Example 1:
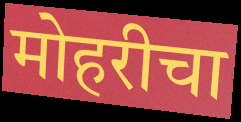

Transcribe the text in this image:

मोहरीचा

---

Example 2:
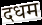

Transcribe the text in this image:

दधम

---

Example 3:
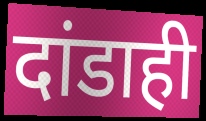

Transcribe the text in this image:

दांडाही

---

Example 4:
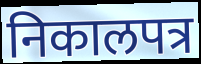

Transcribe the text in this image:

निकालपत्र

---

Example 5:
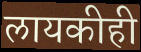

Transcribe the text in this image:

लायकीही